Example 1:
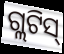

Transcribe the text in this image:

ଗ୍ଲଟିସ୍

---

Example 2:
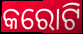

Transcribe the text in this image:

କରୋଟି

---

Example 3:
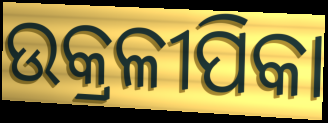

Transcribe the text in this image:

ଉକ୍ରଳୀପିକା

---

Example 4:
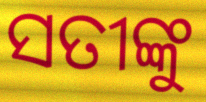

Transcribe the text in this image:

ସତୀଙ୍କୁ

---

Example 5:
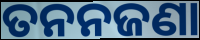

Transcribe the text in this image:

ତନନଜଣା